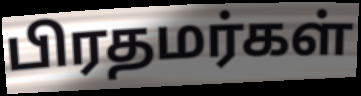
பிரதமர்கள்